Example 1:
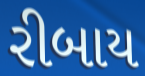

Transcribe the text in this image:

રીબાય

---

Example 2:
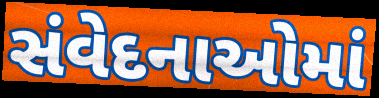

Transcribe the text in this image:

સંવેદનાઓમાં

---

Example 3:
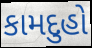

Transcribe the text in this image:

કામદુહો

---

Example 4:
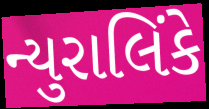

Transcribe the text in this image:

ન્યુરાલિંકે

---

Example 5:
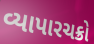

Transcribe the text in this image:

વ્યાપારચક્રો